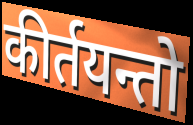
कीर्तयन्तो